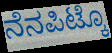
ನೆನಪಿಟ್ಕೊ